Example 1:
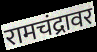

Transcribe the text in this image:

रामचंद्रावर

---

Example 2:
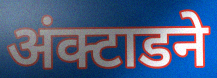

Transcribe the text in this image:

अंक्टाडने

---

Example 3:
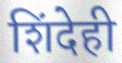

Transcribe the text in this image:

शिंदेही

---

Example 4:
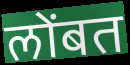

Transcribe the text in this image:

लोंबत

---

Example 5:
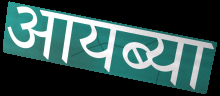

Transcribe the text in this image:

आयब्या